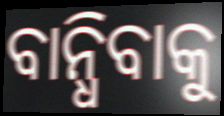
ବାନ୍ଧିବାକୁ